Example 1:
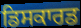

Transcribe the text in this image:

ਡਿਸਕਾਰਡ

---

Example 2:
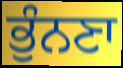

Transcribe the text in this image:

ਭੁੰਨਣਾ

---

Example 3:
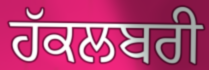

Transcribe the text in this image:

ਹੱਕਲਬਰੀ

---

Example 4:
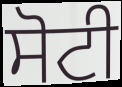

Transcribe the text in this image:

ਸੋਟੀ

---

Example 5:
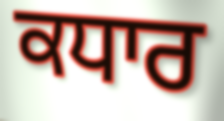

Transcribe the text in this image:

ਕਧਾਰ